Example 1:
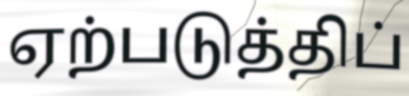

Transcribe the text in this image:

ஏற்படுத்திப்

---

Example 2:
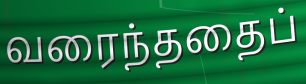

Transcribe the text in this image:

வரைந்ததைப்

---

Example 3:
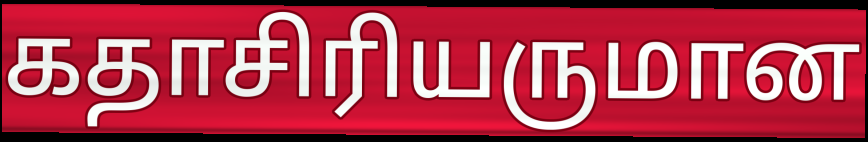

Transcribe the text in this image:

கதாசிரியருமான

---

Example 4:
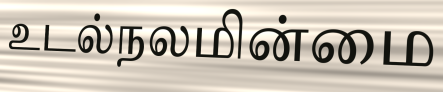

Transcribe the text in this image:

உடல்நலமின்மை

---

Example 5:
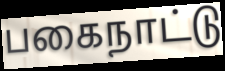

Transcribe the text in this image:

பகைநாட்டு